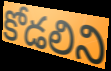
కోడలిని